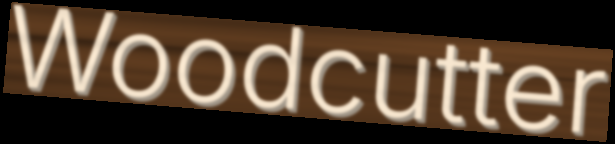
Woodcutter